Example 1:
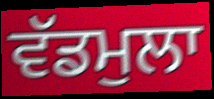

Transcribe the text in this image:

ਵੱਡਮੁਲਾ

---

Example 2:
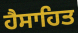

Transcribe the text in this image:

ਹੈਸਾਹਿਤ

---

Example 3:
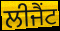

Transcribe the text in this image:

ਲੀਜੈਂਟ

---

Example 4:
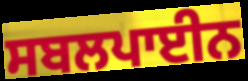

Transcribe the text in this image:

ਸਬਲਪਾਈਨ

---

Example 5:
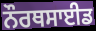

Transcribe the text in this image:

ਨੌਰਥਸਾਈਡ